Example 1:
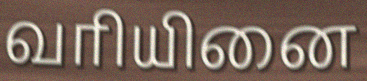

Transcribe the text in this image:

வரியினை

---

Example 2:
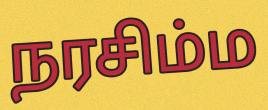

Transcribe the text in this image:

நரசிம்ம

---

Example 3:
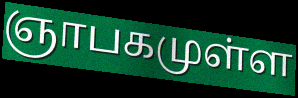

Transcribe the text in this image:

ஞாபகமுள்ள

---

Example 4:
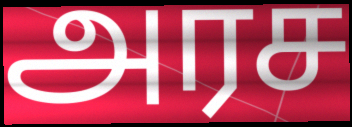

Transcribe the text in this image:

அரச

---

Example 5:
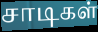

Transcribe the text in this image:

சாடிகள்